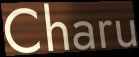
Charu